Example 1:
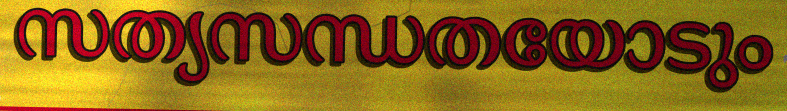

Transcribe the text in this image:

സത്യസന്ധതയോടും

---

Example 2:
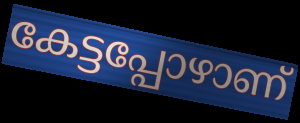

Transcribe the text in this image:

കേട്ടപ്പോഴാണ്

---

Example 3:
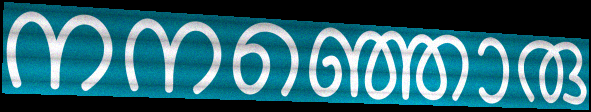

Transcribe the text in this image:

നനഞ്ഞൊരു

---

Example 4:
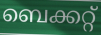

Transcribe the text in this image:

ബെക്കറ്റ്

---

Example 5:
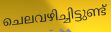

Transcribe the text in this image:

ചെലവഴിച്ചിട്ടുണ്ട്